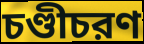
চণ্ডীচরণ